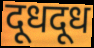
दूधदूध